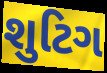
શુટિગ